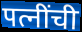
पत्नींची